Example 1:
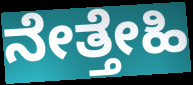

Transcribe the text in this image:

ನೇತ್ತೇಹಿ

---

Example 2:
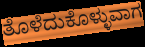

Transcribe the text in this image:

ತೊಳೆದುಕೊಳ್ಳುವಾಗ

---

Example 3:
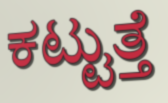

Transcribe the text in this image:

ಕಟ್ಟುತ್ತೆ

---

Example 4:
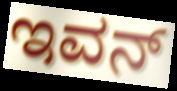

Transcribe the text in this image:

ಇವನ್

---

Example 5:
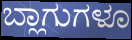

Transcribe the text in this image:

ಬ್ಲಾಗುಗಳೂ